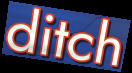
ditch